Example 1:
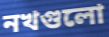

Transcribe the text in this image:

নখগুলো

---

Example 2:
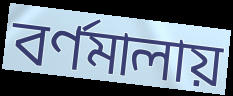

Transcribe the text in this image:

বর্ণমালায়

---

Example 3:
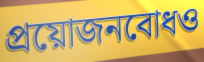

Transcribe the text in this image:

প্রয়োজনবোধও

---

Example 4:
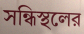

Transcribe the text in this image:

সন্ধিস্থলের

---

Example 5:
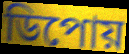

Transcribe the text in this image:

ডিপোয়